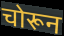
चोरून